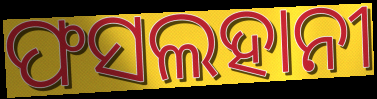
ଫସଲହାନୀ